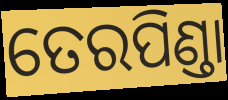
ତେରପିଣ୍ଡା